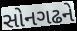
સોનગઢને